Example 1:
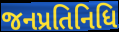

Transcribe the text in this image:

જનપ્રતિનિધિ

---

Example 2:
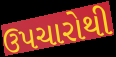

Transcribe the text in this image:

ઉપચારોથી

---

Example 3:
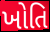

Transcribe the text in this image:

ખોતિ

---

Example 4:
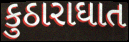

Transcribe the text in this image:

કુઠારાઘાત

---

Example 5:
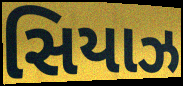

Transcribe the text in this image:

સિયાઝ